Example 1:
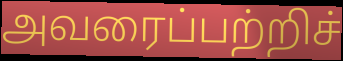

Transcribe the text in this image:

அவரைப்பற்றிச்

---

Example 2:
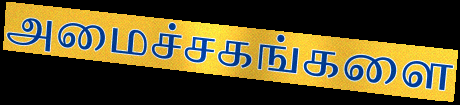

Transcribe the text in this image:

அமைச்சகங்களை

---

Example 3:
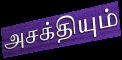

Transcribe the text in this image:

அசக்தியும்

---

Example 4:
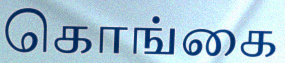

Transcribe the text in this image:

கொங்கை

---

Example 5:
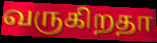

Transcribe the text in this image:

வருகிறதா